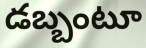
డబ్బంటూ